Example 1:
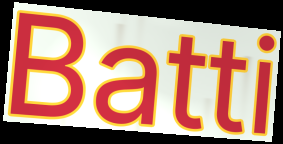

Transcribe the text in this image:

Batti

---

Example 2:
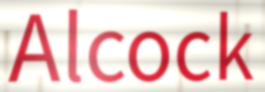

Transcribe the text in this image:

Alcock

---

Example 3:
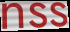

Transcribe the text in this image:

nss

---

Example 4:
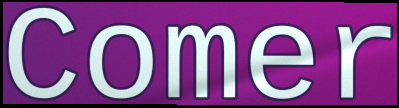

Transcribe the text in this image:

Comer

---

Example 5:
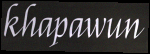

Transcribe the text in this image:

khapawun